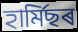
হাৰ্মিছৰ